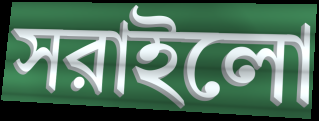
সরাইলো